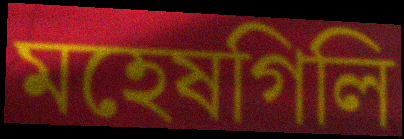
মহেষগিলি